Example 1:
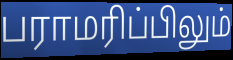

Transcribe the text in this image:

பராமரிப்பிலும்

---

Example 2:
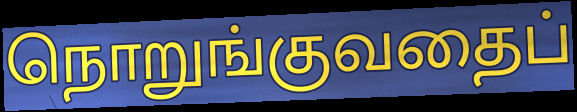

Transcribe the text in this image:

நொறுங்குவதைப்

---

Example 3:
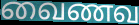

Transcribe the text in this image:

வைணவ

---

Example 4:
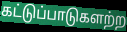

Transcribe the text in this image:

கட்டுப்பாடுகளற்ற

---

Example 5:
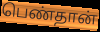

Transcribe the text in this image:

பெண்தான்